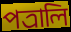
পত্রালি